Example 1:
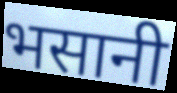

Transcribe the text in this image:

भसानी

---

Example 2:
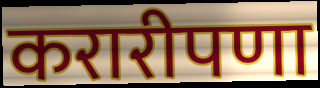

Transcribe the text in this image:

करारीपणा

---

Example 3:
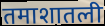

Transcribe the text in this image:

तमाशातली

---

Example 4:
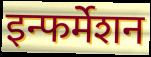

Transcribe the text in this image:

इन्फर्मेशन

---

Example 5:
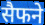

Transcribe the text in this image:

सैफने